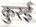
कुरई